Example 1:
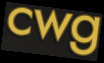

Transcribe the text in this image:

cwg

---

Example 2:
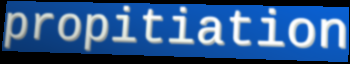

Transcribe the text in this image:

propitiation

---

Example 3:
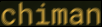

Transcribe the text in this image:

chiman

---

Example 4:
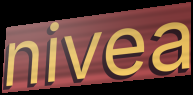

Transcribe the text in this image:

nivea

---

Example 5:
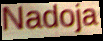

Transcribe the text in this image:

Nadoja